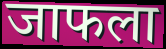
जाफला